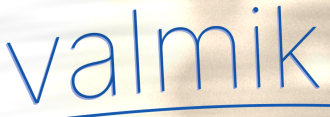
valmik